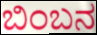
ಬಿಂಬನ